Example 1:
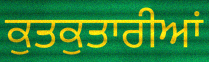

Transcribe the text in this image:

ਕੁਤਕੁਤਾਰੀਆਂ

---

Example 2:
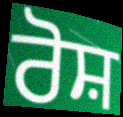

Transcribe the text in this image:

ਰੋਸ਼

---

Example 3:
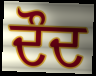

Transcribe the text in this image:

ਦੌਦ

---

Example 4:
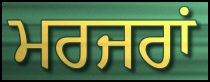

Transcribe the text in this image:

ਮਰਜਰਾਂ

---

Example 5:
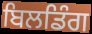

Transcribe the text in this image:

ਬਿਲਡਿੰਗ